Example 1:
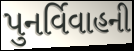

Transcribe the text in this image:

પુનર્વિવાહની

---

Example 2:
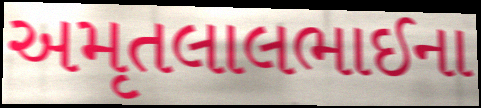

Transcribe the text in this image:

અમૃતલાલભાઈના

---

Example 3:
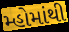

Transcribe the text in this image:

મ્હોમાંથી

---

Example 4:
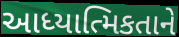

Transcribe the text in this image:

આધ્યાત્મિકતાને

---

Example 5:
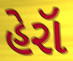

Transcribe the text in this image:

હેરૉ